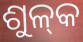
ଶୁଳ୍‌କ